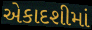
એકાદશીમાં